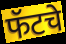
फॅटचे